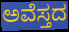
ಅವೆಸ್ತದ